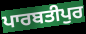
ਪਾਰਬਤੀਪੁਰ